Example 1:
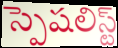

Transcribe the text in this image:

స్పెషలిస్ట్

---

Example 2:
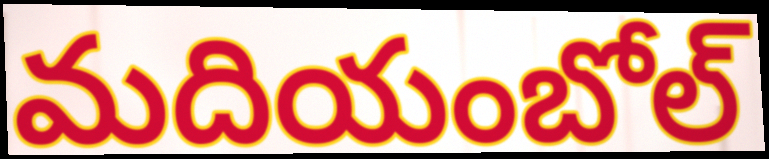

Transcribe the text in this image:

మదియంబోల్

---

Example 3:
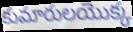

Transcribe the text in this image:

కుమారులయొక్క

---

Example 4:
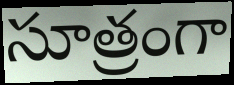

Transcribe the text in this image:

సూత్రంగా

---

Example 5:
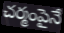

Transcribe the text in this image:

చర్మంపైనే